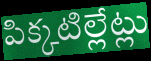
పిక్కటిల్లేట్లు